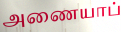
அணையாப்